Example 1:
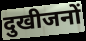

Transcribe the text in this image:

दुखीजनों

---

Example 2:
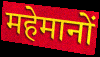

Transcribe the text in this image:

महेमानों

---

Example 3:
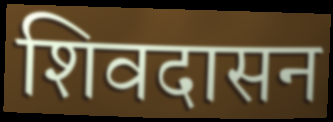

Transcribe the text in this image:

शिवदासन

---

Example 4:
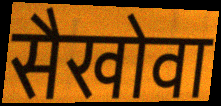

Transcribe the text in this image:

सैखोवा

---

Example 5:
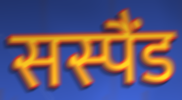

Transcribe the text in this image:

सस्पैंड